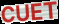
CUET